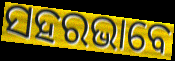
ସହରଭାବେ